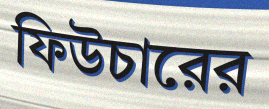
ফিউচারের